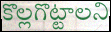
కొల్లగొట్టాలని